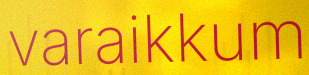
varaikkum